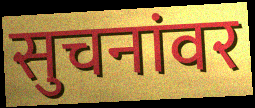
सुचनांवर